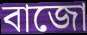
বাজো